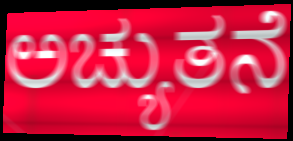
ಅಚ್ಯುತನೆ